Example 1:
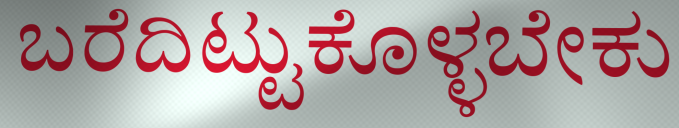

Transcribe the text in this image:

ಬರೆದಿಟ್ಟುಕೊಳ್ಳಬೇಕು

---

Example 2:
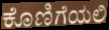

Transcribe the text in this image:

ಕೊಣಿಗೆಯಲಿ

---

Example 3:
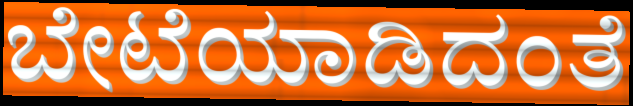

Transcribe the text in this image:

ಬೇಟೆಯಾಡಿದಂತೆ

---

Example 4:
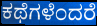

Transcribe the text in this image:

ಕಥೆಗಳೆಂದರೆ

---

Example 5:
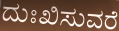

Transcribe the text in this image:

ದುಃಖಿಸುವರೆ